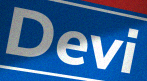
Devi